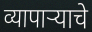
व्यापाऱ्याचे